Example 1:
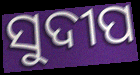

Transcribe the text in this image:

ସୁଦୀପ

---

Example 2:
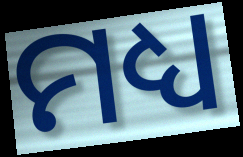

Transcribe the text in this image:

ମଧ୍ୟ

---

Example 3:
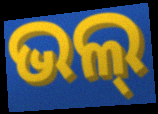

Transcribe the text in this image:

ଭଲ୍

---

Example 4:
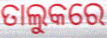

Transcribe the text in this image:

ତାଲୁକରେ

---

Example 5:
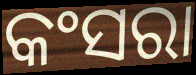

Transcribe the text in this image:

କଂସରା